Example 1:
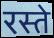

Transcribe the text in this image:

रस्ते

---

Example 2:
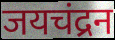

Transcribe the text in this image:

जयचंद्रन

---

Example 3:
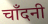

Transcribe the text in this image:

चाँदनी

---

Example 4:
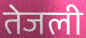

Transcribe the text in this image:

तेजली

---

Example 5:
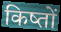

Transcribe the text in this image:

किष्तों